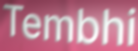
Tembhi